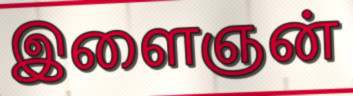
இளைஞன்